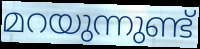
മറയുന്നുണ്ട്